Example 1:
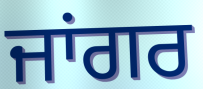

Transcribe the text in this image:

ਜਾਂਗਰ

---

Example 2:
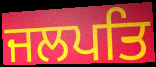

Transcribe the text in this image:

ਜਲਪਤਿ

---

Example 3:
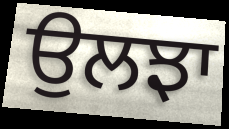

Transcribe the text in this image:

ਉਲਝਾ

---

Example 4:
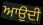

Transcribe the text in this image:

ਆਉਦੀ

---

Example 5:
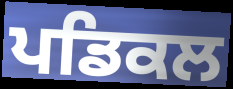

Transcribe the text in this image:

ਪਡਿਕਲ